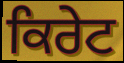
ਕਿਰੇਟ